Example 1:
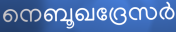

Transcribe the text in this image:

നെബൂഖദ്രേസർ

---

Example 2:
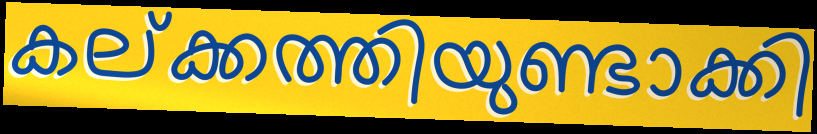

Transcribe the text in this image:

കല്ക്കത്തിയുണ്ടാക്കി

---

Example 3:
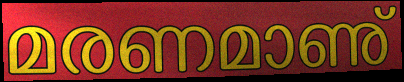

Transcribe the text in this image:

മരണമാണു്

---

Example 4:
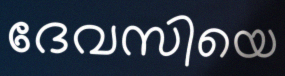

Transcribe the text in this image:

ദേവസിയെ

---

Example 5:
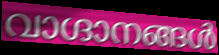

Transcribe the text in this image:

വാഗ്ദാനങ്ങൾ